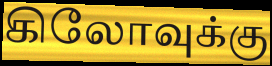
கிலோவுக்கு